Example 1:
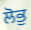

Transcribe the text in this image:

ਲੋਭੁ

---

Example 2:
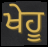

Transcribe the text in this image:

ਖੇਹੂ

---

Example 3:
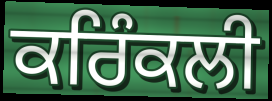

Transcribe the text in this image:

ਕਰਿੰਕਲੀ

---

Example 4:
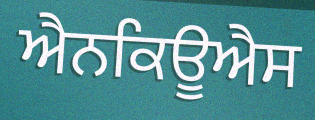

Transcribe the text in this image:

ਐਨਕਿਊਐਸ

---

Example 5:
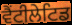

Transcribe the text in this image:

ਵੈਂਟੀਲੇਟਿਡ